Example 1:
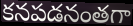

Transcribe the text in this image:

కనపడనంతగా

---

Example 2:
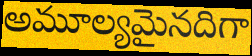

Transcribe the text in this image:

అమూల్యమైనదిగా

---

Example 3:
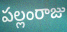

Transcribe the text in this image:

పల్లంరాజు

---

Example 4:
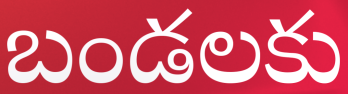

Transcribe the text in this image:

బండలకు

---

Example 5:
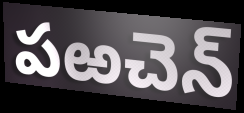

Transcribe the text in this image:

పఱచెన్